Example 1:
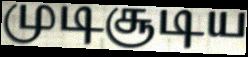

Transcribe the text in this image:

முடிசூடிய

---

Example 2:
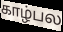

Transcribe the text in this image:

காழ்பல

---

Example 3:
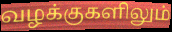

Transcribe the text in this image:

வழக்குகளிலும்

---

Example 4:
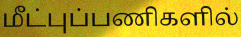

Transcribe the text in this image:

மீட்புப்பணிகளில்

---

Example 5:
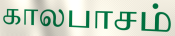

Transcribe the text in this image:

காலபாசம்